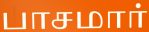
பாசமார்